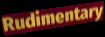
Rudimentary